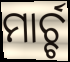
ମାର୍ଚ୍ଚ